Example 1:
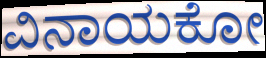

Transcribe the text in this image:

ವಿನಾಯಕೋ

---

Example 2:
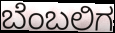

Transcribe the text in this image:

ಬೆಂಬಲಿಗ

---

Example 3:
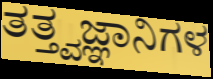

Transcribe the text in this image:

ತತ್ತ್ವಜ್ಞಾನಿಗಳ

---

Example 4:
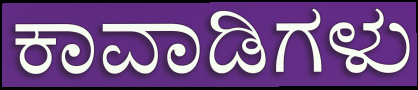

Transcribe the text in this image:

ಕಾವಾಡಿಗಳು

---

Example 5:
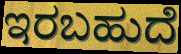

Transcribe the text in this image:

ಇರಬಹುದೆ